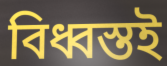
বিধ্বস্তই